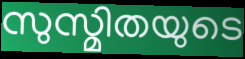
സുസ്മിതയുടെ